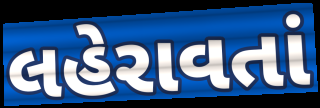
લહેરાવતાં